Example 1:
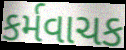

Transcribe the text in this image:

કર્મવાચક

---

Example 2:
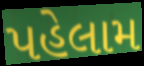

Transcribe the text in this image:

પહેલામ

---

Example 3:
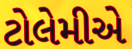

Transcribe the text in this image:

ટોલેમીએ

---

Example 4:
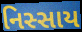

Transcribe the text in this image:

નિસ્સાય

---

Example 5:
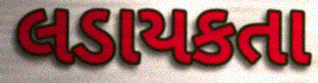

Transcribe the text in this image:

લડાયકતા